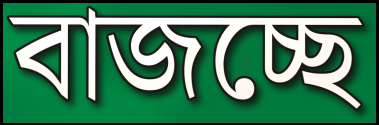
বাজচ্ছে